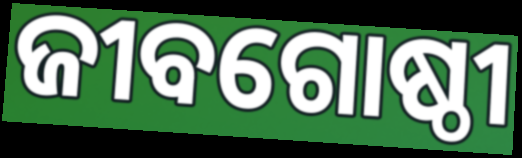
ଜୀବଗୋଷ୍ଠୀ